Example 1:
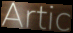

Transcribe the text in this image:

Artic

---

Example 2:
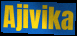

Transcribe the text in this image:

Ajivika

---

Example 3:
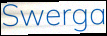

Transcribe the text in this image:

Swerga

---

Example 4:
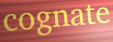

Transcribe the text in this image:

cognate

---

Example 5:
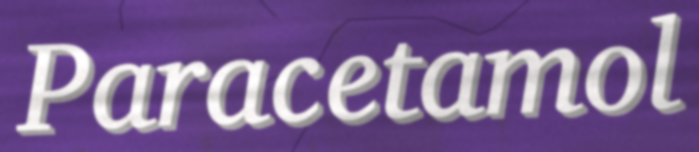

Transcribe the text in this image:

Paracetamol